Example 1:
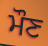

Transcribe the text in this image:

ਮੌਣ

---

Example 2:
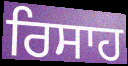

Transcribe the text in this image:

ਰਿਸਾਹ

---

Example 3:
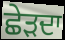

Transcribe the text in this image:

ਛੇੜਦਾ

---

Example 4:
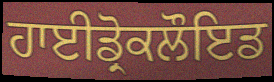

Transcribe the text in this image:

ਹਾਈਡ੍ਰੋਕਲੌਇਡ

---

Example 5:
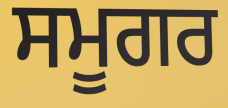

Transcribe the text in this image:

ਸਮੂਗਰ